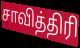
சாவித்திரி